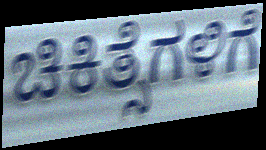
ಚಿಕಿತ್ಸೆಗಳಿಗೆ